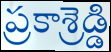
ప్రకాశ్రెడ్డి